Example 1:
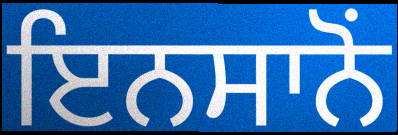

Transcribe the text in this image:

ਇਨਸਾਨੋਂ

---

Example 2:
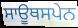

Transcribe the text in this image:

ਸਾਊਥਸਪੇਨ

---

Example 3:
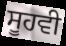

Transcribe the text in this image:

ਸੂਹਵੀ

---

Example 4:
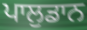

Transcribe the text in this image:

ਪਾਲੁਡਾਨ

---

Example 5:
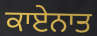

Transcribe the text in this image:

ਕਾਏਨਾਤ